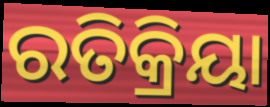
ରତିକ୍ରିୟା